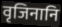
वृजिनानि